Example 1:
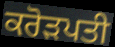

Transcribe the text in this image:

ਕਰੋੜਪਤੀ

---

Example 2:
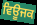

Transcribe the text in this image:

ਵਿਊਜਕ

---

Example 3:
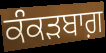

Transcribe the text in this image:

ਕੰਕੜਬਾਗ਼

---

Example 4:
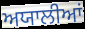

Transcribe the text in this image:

ਅਯਾਲੀਆਂ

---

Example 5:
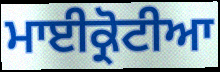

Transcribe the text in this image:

ਮਾਈਕ੍ਰੋਟੀਆ